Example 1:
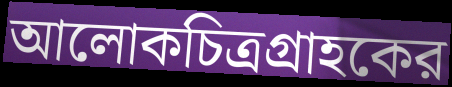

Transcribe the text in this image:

আলোকচিত্রগ্রাহকের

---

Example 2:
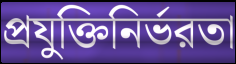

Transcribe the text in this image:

প্রযুক্তিনির্ভরতা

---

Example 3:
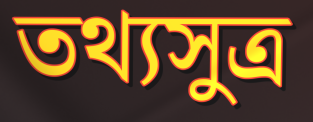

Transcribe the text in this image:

তথ্যসুত্র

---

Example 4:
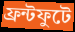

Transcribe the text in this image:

ফ্রন্টফুটে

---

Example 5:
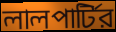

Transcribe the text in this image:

লালপার্টির